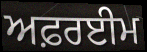
ਅਫ਼ਰਈਮ